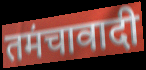
तमंचावादी